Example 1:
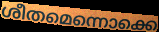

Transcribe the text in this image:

ശീതമെന്നൊക്കെ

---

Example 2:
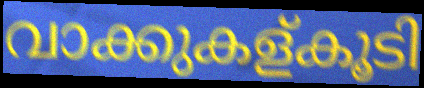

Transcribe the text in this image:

വാക്കുകള്കൂടി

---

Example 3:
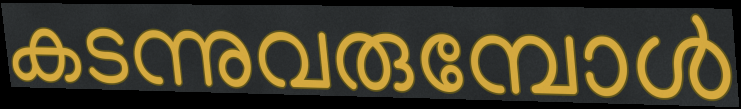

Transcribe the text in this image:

കടന്നുവരുമ്പോൾ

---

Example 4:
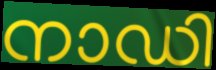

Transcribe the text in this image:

നാഡി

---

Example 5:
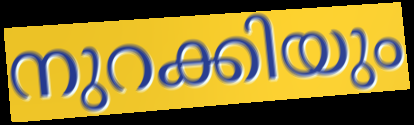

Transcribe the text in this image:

നുറക്കിയും